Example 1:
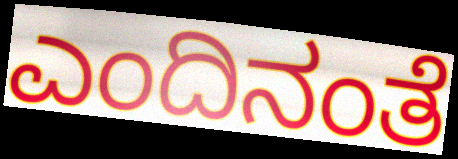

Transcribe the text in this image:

ಎಂದಿನಂತೆ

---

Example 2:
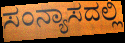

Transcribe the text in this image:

ಸಂನ್ಯಾಸದಲ್ಲಿ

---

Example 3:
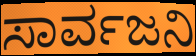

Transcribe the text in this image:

ಸಾರ್ವಜನಿ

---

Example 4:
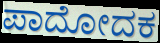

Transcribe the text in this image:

ಪಾದೋದಕ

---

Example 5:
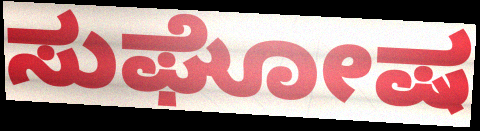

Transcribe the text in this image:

ಸುಘೋಷ